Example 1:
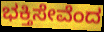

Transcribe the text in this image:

ಭಕ್ತಿಸೇವೆಂದ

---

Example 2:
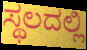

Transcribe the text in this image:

ಸ್ಥಲದಲ್ಲಿ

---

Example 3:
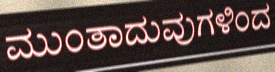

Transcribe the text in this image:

ಮುಂತಾದುವುಗಳಿಂದ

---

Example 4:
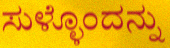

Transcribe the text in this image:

ಸುಳ್ಳೊಂದನ್ನು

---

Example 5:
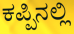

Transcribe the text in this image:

ಕಪ್ಪಿನಲ್ಲಿ